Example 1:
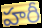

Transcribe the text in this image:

హరీ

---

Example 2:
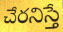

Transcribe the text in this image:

చేరనిస్తే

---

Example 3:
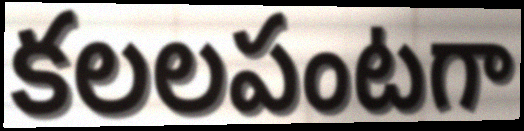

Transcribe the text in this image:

కలలపంటగా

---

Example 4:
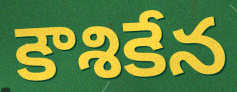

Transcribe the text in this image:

కౌశికేన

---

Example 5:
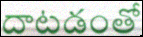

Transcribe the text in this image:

దాటడంతో